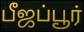
பீஜப்பூர்